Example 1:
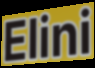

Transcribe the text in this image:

Elini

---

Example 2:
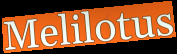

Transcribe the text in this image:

Melilotus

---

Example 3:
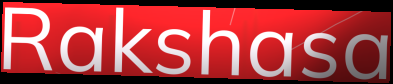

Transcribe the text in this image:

Rakshasa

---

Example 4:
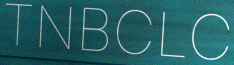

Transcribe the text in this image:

TNBCLC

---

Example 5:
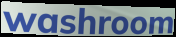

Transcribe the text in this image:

washroom